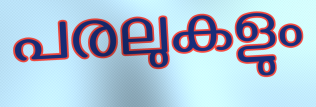
പരലുകളും